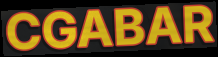
CGABAR